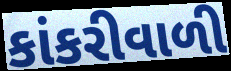
કાંકરીવાળી